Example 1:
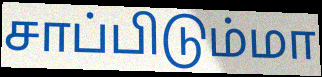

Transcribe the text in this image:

சாப்பிடும்மா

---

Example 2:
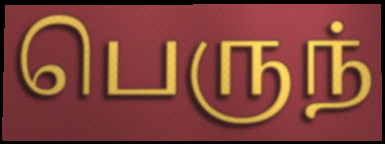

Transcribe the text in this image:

பெருந்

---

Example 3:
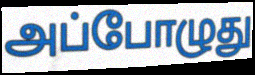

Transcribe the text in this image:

அப்போழுது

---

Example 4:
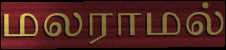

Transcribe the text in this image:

மலராமல்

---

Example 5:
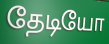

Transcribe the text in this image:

தேடியோ